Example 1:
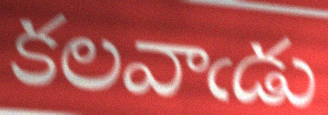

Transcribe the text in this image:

కలవాఁడు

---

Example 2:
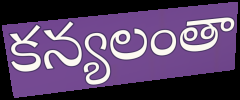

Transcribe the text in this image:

కన్యలంతా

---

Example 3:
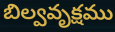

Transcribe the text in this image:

బిల్వవృక్షము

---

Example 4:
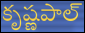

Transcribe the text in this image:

కృష్ణపాల్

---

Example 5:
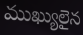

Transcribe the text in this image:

ముఖ్యులైన